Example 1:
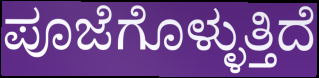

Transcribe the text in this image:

ಪೂಜೆಗೊಳ್ಳುತ್ತಿದೆ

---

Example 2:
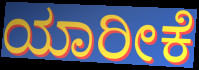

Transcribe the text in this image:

ಯಾರೀಕೆ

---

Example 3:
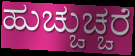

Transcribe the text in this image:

ಹುಚ್ಚುಚ್ಚರೆ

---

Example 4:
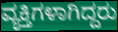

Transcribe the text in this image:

ವ್ಯಕ್ತಿಗಳಾಗಿದ್ದರು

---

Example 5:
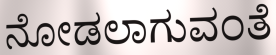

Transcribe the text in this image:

ನೋಡಲಾಗುವಂತೆ